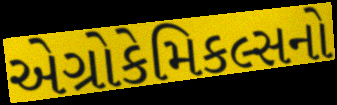
એગ્રોકેમિકલ્સનો